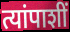
त्यांपाशीं